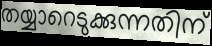
തയ്യാറെടുക്കുന്നതിന്